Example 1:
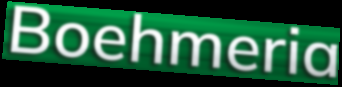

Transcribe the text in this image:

Boehmeria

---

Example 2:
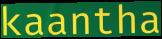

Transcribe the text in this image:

kaantha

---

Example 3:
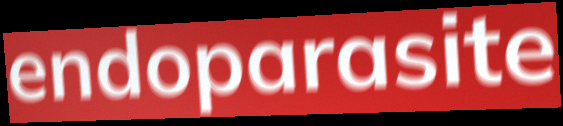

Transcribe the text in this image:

endoparasite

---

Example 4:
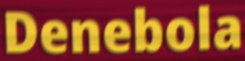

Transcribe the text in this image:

Denebola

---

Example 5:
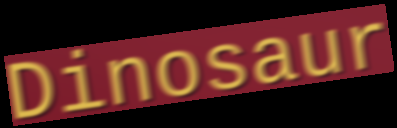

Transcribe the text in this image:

Dinosaur